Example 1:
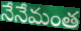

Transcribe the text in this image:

నేనేమంత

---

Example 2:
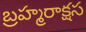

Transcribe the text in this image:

బ్రహ్మరాక్షస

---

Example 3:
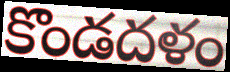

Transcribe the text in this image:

కొండదళం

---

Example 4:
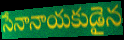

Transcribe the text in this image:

సేనానాయకుడైన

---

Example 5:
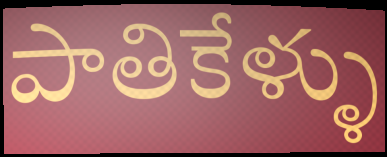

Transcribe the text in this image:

పాతికేళ్ళు